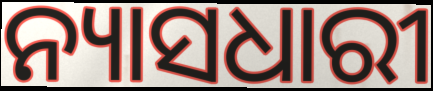
ନ୍ୟାସଧାରୀ